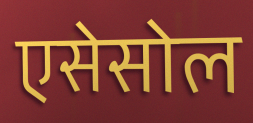
एसेसोल